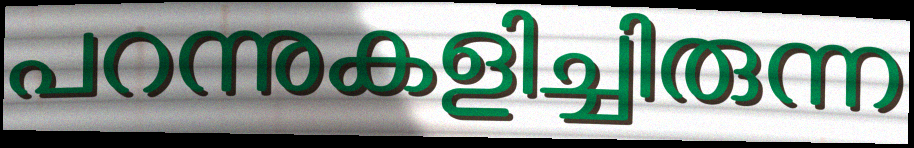
പറന്നുകളിച്ചിരുന്ന